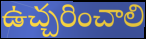
ఉచ్చరించాలి